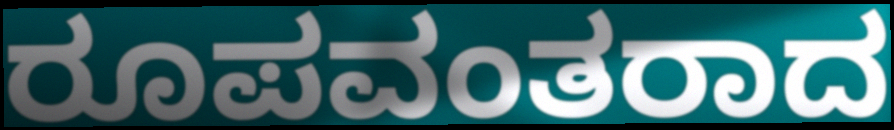
ರೂಪವಂತರಾದ